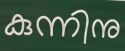
കുന്നിനു